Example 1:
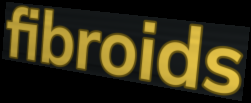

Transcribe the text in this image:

fibroids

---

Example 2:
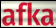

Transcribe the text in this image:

afka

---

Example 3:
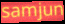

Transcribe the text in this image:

samjun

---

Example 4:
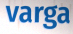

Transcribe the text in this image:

varga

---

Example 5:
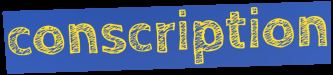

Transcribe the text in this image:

conscription